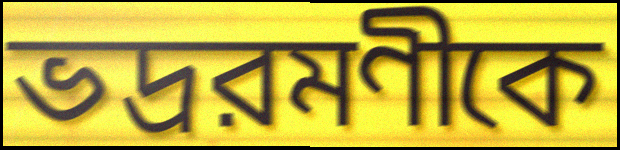
ভদ্ররমণীকে